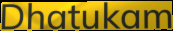
Dhatukam